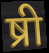
ष्री